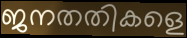
ജനതതികളെ